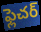
ఫ్లెచర్